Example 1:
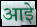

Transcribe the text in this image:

आइे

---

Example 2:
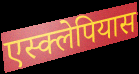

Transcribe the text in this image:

एस्क्लेपियास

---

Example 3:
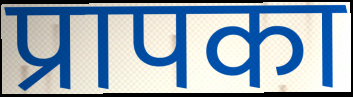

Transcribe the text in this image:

प्रापका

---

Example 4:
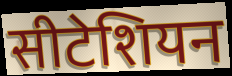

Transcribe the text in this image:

सीटेशियन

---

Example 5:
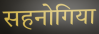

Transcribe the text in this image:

सहनोगिया